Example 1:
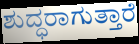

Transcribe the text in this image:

ಶುದ್ಧರಾಗುತ್ತಾರೆ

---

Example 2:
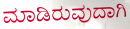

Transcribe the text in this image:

ಮಾಡಿರುವುದಾಗಿ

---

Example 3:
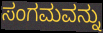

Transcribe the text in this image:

ಸಂಗಮವನ್ನು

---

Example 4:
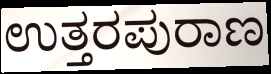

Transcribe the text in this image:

ಉತ್ತರಪುರಾಣ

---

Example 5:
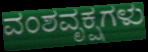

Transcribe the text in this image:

ವಂಶವೃಕ್ಷಗಳು